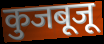
कुजबूजू